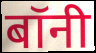
बॉनी